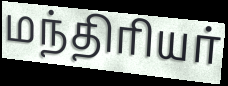
மந்திரியர்